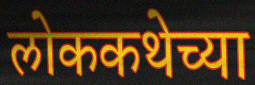
लोककथेच्या